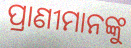
ପ୍ରାଣୀମାନଙ୍କୁ